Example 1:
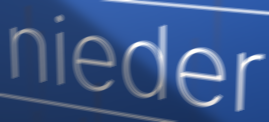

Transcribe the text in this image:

nieder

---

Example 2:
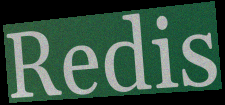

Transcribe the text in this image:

Redis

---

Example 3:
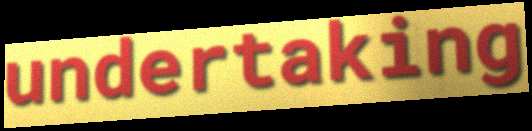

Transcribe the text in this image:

undertaking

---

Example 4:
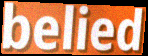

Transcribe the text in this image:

belied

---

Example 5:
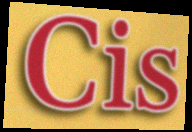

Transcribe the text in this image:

Cis